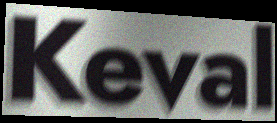
Keval